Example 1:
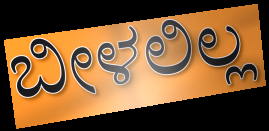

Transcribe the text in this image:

ಬೀಳಲಿಲ್ಲ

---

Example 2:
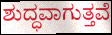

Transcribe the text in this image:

ಶುದ್ಧವಾಗುತ್ತವೆ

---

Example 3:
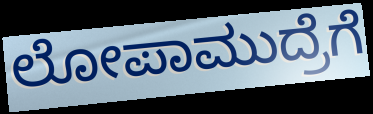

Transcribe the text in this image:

ಲೋಪಾಮುದ್ರೆಗೆ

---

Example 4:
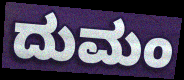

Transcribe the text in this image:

ದುಮಂ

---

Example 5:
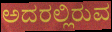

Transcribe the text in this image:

ಅದರಲ್ಲಿರುವ